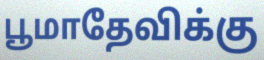
பூமாதேவிக்கு